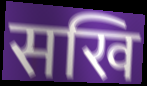
सखि